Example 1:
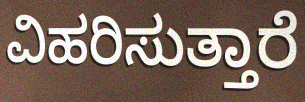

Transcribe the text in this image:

ವಿಹರಿಸುತ್ತಾರೆ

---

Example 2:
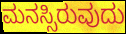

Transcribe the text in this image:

ಮನಸ್ಸಿರುವುದು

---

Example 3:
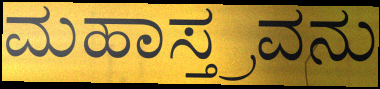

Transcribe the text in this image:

ಮಹಾಸ್ತ್ರವನು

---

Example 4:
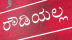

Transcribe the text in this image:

ರೌಡಿಯಲ್ಲ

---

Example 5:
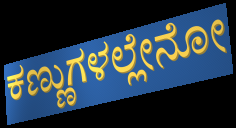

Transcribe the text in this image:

ಕಣ್ಣುಗಳಲ್ಲೇನೋ